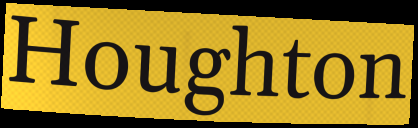
Houghton